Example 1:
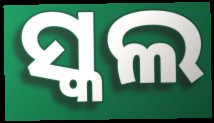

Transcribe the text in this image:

ସ୍କଲ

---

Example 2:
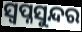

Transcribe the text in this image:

ସ୍ୱପ୍ନସୁନ୍ଦର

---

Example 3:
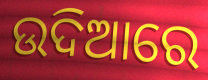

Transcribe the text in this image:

ଉଦିଆରେ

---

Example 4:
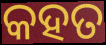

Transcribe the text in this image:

କହତ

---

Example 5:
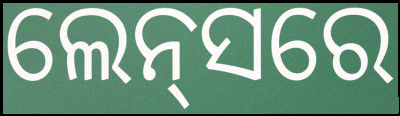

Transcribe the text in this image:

ଲେନ୍‌ସରେ